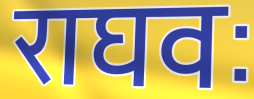
राघवः